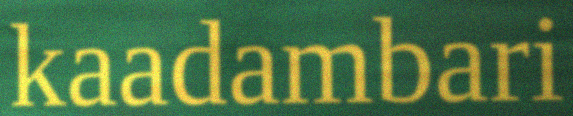
kaadambari